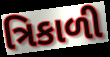
ત્રિકાળી